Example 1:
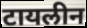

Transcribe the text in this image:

टायलीन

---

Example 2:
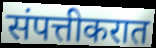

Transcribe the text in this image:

संपत्तीकरात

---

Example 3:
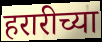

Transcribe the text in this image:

हरारीच्या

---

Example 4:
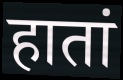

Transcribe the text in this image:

हातां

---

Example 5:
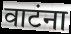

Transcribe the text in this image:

वाटंना